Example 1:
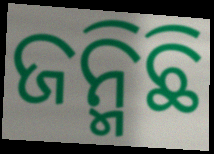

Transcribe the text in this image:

ଜନ୍ମିଛି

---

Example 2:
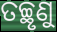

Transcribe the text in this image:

ତଚ୍ଛୃଣୁ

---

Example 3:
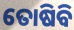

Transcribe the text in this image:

ତୋଷିବି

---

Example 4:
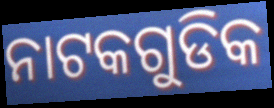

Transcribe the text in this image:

ନାଟକଗୁଡିକ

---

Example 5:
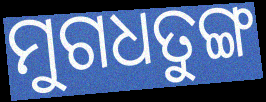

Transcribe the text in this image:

ମୁଗଧତୁଙ୍ଗ